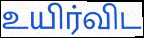
உயிர்விட